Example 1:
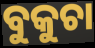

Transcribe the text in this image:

ବୁକୁଚା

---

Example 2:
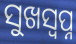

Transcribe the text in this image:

ସୁଖସ୍ୱପ୍ନ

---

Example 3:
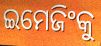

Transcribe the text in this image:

ଇମେଜିଂକୁ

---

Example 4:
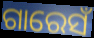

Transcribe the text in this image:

ଗାରେସଁ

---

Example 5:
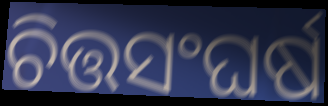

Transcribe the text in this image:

ଚିତ୍ତସଂଘର୍ଷ